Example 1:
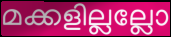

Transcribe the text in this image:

മക്കളില്ലല്ലോ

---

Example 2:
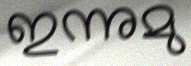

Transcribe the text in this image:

ഇന്നുമു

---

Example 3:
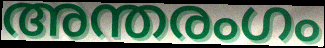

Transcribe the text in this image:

അന്തരംഗം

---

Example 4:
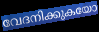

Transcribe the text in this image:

വേദനിക്കുകയോ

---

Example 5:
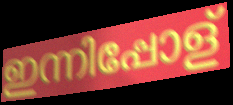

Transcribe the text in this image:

ഇന്നിപ്പോള്